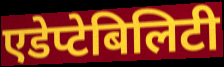
एडेप्टेबिलिटी